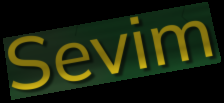
Sevim